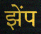
झेंप